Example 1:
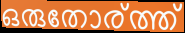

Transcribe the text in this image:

ഒരുതോര്ത്ത്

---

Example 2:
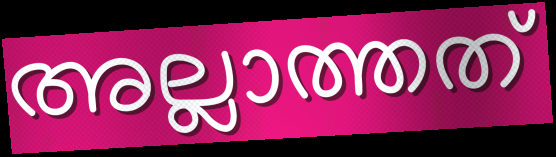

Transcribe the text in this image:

അല്ലാത്തത്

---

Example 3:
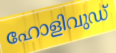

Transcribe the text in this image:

ഹോളിവുഡ്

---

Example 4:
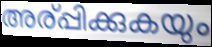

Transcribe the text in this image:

അര്പ്പിക്കുകയും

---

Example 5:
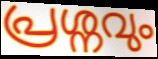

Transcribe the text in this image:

പ്രശ്നവും